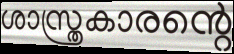
ശാസ്ത്രകാരന്റെ